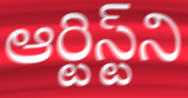
ఆర్టిస్ట్‌ని